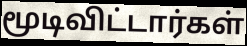
மூடிவிட்டார்கள்